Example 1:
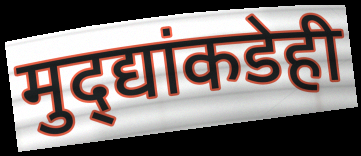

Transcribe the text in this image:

मुद्द्यांकडेही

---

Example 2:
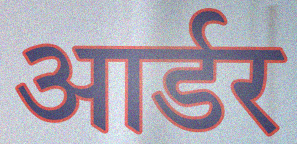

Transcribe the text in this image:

आर्डर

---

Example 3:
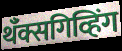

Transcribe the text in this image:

थॅँक्सगिव्हिंग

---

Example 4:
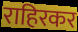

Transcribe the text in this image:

राहिरकर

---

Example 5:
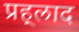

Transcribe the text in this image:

प्रह्‌लाद